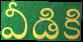
వీడికి